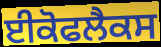
ਈਕੋਫਲੈਕਸ